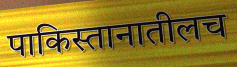
पाकिस्तानातीलच